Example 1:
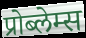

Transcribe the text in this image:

प्रोब्लेम्स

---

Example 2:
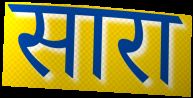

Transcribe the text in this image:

सारा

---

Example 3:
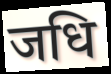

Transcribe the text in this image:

जधि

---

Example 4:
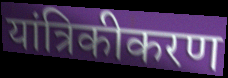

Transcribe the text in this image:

यांत्रिकीकरण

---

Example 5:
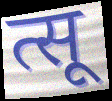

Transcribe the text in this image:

त्सू